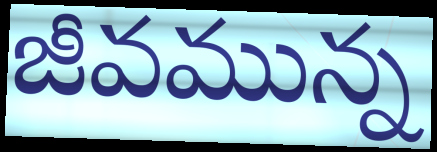
జీవమున్న